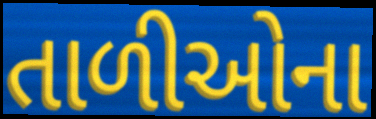
તાળીઓના